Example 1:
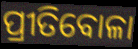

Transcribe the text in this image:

ପ୍ରୀତିବୋଳା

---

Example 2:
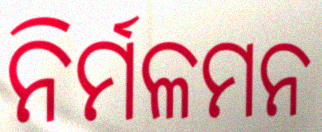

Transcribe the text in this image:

ନିର୍ମଳମନ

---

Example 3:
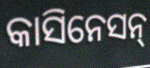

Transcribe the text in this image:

କାସିନେସନ୍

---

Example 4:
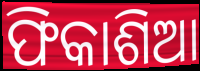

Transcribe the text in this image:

ଫିକାଶିଆ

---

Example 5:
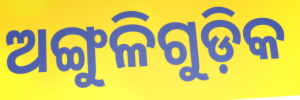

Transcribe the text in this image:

ଅଙ୍ଗୁଳିଗୁଡ଼ିକ